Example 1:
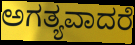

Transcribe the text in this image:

ಅಗತ್ಯವಾದರೆ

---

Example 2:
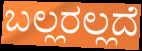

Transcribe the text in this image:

ಬಲ್ಲರಲ್ಲದೆ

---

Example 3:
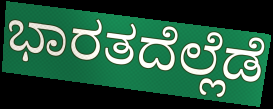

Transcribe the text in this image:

ಭಾರತದೆಲ್ಲೆಡೆ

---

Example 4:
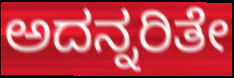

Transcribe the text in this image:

ಅದನ್ನರಿತೇ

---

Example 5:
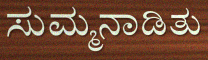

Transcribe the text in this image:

ಸುಮ್ಮನಾಡಿತು